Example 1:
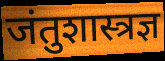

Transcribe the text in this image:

जंतुशास्त्रज्ञ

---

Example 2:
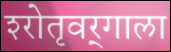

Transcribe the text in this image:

श्रोतृवर्गाला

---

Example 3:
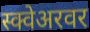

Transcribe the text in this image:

स्क्वेअरवर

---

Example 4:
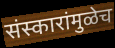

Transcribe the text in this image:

संस्कारांमुळेच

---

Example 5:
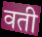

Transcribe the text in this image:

वती